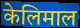
केलिमाल